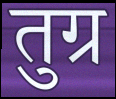
तुग्र